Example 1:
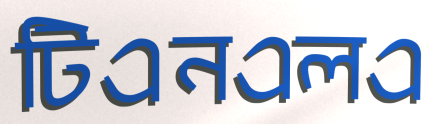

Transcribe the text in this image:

টিএনএলএ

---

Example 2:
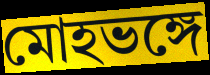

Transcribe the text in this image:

মোহভঙ্গে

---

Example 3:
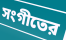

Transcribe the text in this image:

সংগীতের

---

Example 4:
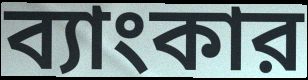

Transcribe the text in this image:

ব্যাংকার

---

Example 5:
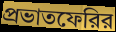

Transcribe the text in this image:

প্রভাতফেরির